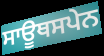
ਸਾਊਥਸਪੇਨ